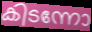
കിടന്നോ